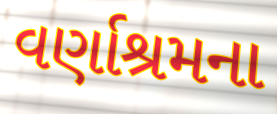
વર્ણાશ્રમના